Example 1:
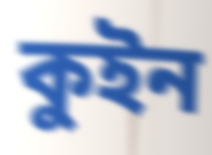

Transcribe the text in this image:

কুইন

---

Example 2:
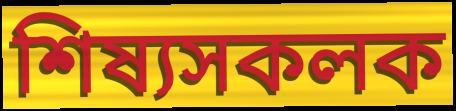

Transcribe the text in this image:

শিষ্যসকলক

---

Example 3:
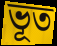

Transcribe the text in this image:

ভূত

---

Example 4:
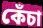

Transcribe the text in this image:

কেঁচা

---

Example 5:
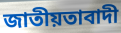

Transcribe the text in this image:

জাতীয়তাবাদী